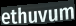
ethuvum